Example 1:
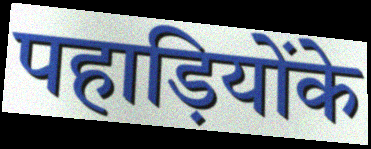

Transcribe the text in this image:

पहाड़ियोंके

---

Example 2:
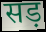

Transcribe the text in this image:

सड़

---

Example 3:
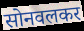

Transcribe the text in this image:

सोनवलकर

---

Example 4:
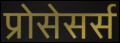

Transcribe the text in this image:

प्रोसेसर्स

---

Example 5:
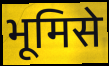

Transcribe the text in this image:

भूमिसे